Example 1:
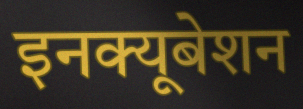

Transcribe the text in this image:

इनक्यूबेशन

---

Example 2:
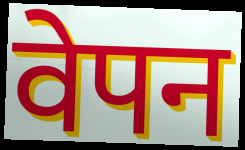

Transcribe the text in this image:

वेपन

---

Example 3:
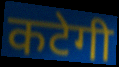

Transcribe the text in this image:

कटेगी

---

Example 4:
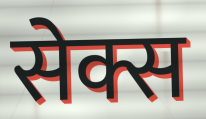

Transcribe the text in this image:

सेक्स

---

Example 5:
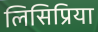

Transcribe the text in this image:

लिसिप्रिया